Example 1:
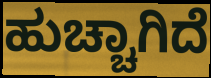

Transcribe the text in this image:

ಹುಚ್ಚಾಗಿದೆ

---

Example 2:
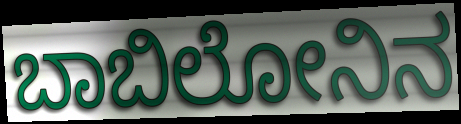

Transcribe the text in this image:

ಬಾಬಿಲೋನಿನ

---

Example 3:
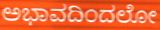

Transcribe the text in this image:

ಅಭಾವದಿಂದಲೋ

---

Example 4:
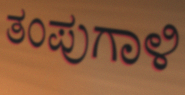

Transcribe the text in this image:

ತಂಪುಗಾಳಿ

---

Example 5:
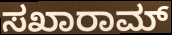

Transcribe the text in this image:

ಸಖಾರಾಮ್